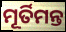
ମୂର୍ତିମନ୍ତ